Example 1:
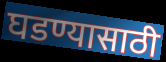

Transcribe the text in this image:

घडण्यासाठी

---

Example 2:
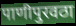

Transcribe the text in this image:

पाणीपुरवठा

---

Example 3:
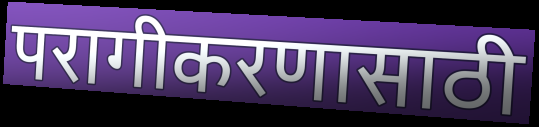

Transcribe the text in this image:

परागीकरणासाठी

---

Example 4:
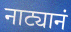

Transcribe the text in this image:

नाट्यानं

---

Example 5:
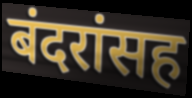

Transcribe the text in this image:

बंदरांसह